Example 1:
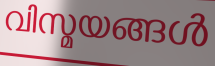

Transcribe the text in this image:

വിസ്മയങ്ങൾ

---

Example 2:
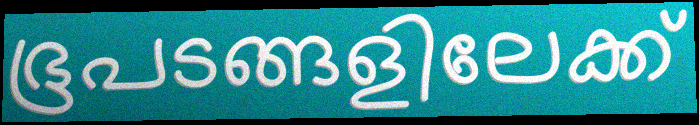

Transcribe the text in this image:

ഭൂപടങ്ങളിലേക്ക്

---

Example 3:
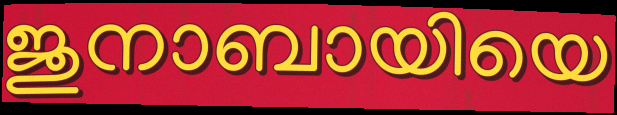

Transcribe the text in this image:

ജുനാബായിയെ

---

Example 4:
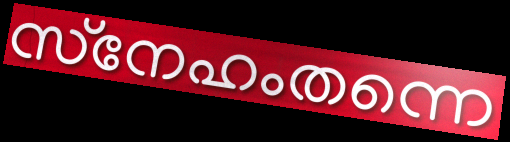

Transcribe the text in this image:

സ്‌നേഹംതന്നെ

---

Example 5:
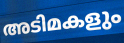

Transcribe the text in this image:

അടിമകളും